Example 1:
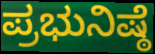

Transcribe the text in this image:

ಪ್ರಭುನಿಷ್ಠೆ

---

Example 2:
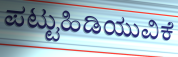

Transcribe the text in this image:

ಪಟ್ಟುಹಿಡಿಯುವಿಕೆ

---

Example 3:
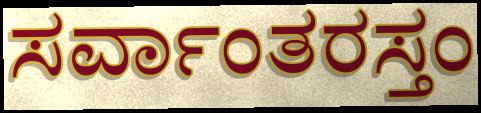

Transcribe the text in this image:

ಸರ್ವಾಂತರಸ್ತಂ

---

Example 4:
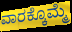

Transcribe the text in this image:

ವಾರಕ್ಕೊಮ್ಮೆ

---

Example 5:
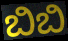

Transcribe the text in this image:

ಬಿಬಿ